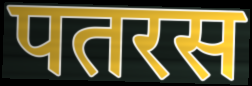
पतरस